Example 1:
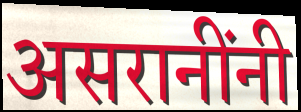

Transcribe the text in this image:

असरानींनी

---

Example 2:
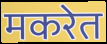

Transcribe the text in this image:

मकरेत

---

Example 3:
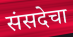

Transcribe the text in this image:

संसदेचा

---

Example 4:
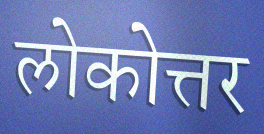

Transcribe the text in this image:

लोकोत्तर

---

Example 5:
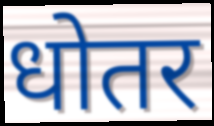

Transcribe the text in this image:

धोतर